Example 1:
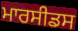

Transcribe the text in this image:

ਮਾਰਸੀਡਸ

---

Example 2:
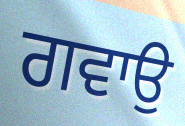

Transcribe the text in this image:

ਗਵਾਉ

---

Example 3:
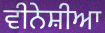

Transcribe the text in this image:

ਵੀਨੇਸ਼ੀਆ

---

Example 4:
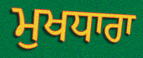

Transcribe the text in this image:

ਮੁਖਧਾਰਾ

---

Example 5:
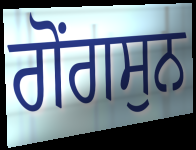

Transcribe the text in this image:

ਗੋਂਗਸੁਨ